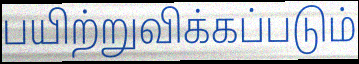
பயிற்றுவிக்கப்படும்